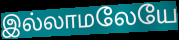
இல்லாமலேயே